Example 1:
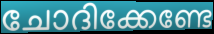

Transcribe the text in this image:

ചോദിക്കേണ്ടേ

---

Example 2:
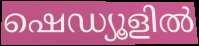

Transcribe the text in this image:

ഷെഡ്യൂളിൽ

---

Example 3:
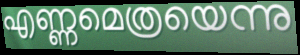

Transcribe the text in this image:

എണ്ണമെത്രയെന്നു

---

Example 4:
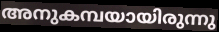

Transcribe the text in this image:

അനുകമ്പയായിരുന്നു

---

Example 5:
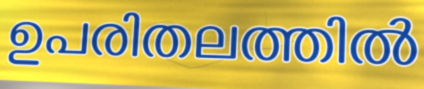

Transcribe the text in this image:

ഉപരിതലത്തിൽ